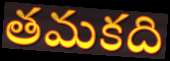
తమకది